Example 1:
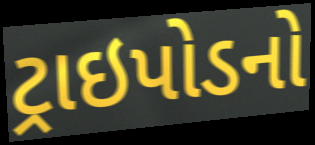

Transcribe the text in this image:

ટ્રાઇપોડનો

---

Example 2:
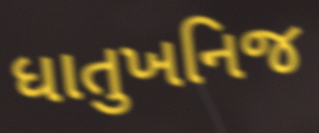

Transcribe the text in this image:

ધાતુખનિજ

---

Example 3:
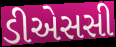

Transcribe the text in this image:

ડીએસસી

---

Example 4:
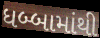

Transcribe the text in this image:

ધબ્બામાંથી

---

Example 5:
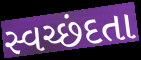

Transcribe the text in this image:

સ્વચ્છંદતા